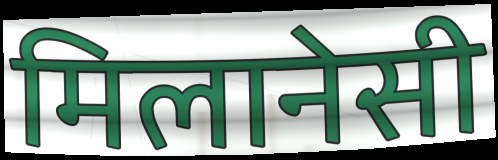
मिलानेसी